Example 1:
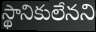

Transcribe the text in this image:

స్థానికులేనని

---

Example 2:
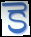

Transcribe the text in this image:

కె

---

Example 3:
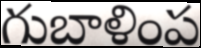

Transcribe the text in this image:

గుబాళింప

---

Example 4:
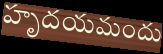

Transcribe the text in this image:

హృదయమందు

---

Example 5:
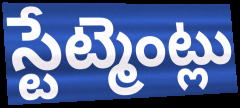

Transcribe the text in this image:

స్టేట్మెంట్లు